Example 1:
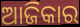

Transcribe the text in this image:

ଆଜିକାର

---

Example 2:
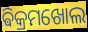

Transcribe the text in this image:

ଵିକ୍ରମଖୋଲ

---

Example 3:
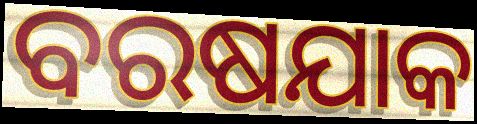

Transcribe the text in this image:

ବରଷଯାକ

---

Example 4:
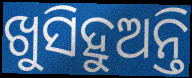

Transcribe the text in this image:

ଖୁସିହୁଅନ୍ତି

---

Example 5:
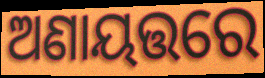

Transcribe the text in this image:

ଅଣାୟତ୍ତରେ